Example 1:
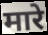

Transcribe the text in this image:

मारे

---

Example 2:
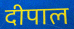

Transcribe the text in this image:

दीपाल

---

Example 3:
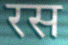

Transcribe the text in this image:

रस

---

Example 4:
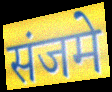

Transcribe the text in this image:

संजमे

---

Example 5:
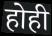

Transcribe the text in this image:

होही